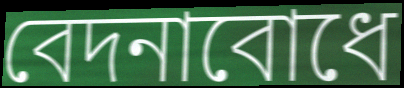
বেদনাবোধে